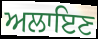
ਅਲਾਇਣ